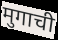
मुगाची